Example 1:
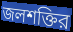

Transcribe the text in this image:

জলশক্তির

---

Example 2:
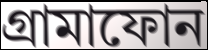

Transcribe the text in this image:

গ্রামাফোন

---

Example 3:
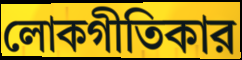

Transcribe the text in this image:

লোকগীতিকার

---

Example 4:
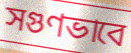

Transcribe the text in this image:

সগুণভাবে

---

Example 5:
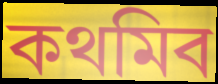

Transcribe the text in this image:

কথমিব